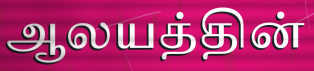
ஆலயத்தின்